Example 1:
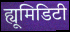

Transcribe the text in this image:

ह्यूमिडिटी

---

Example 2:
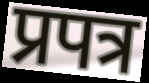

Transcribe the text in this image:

प्रपत्र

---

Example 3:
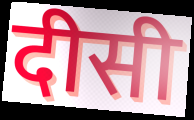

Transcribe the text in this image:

दीसी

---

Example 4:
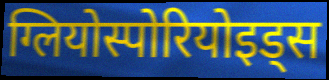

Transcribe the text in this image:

ग्लियोस्पोरियोइड्स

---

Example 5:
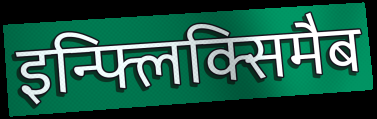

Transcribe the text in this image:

इन्फ्लिक्सिमैब